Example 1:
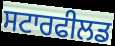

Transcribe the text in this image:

ਸਟਾਰਫੀਲਡ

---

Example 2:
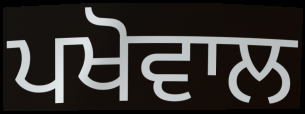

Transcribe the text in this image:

ਪਖੋਵਾਲ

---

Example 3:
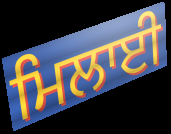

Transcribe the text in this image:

ਮਿਲਾਈ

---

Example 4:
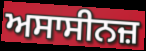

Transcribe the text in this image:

ਅਸਾਸੀਨਜ਼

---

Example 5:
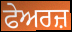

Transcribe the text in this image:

ਫੇਅਰਜ਼